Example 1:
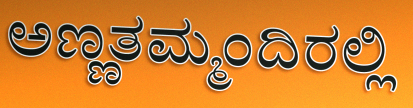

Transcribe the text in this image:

ಅಣ್ಣತಮ್ಮಂದಿರಲ್ಲಿ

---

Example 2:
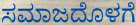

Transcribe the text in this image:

ಸಮಾಜದೊಳಗೆ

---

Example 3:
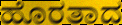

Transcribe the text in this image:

ಹೊರತಾದ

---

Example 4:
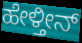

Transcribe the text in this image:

ಹೇಳ್ತೀನ್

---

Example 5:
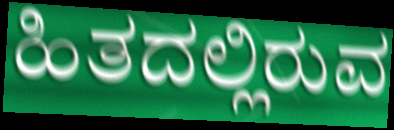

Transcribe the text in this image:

ಹಿತದಲ್ಲಿರುವ